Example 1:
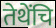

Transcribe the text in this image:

तेथेंचि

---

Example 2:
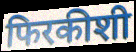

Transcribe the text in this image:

फिरकीशी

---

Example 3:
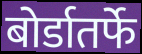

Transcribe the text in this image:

बोर्डातर्फे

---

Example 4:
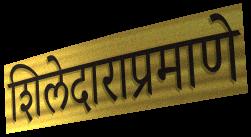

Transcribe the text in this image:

शिलेदाराप्रमाणे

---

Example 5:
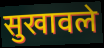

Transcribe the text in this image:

सुखावले